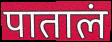
पातालं